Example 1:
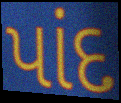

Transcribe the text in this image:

પાંદ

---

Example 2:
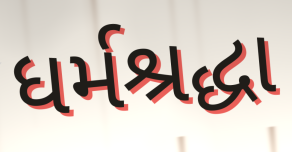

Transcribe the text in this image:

ધર્મશ્રદ્ધા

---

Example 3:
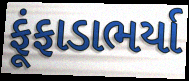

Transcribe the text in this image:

ફૂંફાડાભર્યા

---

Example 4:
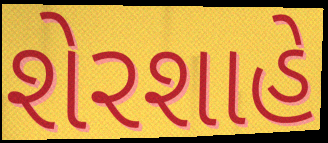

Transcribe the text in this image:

શેરશાહે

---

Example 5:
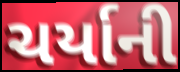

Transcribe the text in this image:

ચર્યાની